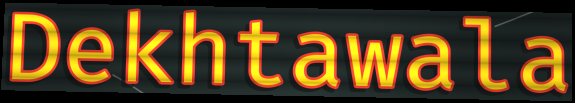
Dekhtawala